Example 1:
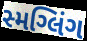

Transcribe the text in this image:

સ્મગ્લિંગ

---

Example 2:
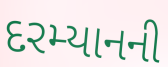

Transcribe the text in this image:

દરમ્યાનની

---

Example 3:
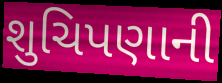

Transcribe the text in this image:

શુચિપણાની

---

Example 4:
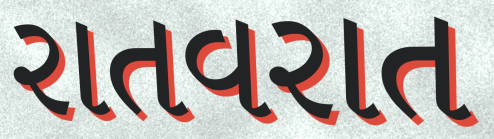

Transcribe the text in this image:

રાતવરાત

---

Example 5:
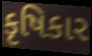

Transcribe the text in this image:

કૃષિકાર